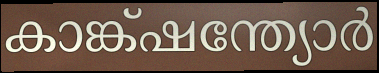
കാങ്ക്ഷന്ത്യോർ